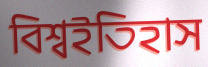
বিশ্বইতিহাস